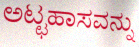
ಅಟ್ಟಹಾಸವನ್ನು